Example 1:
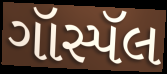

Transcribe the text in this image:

ગૉસ્પૅલ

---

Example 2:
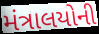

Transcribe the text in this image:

મંત્રાલયોની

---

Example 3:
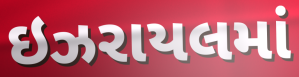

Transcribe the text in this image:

ઇઝરાયલમાં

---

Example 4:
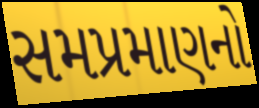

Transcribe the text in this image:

સમપ્રમાણનો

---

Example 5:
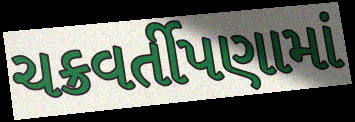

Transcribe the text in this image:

ચક્રવર્તીપણામાં